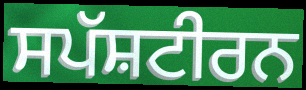
ਸਪੱਸ਼ਟੀਰਨ